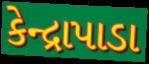
કેન્દ્રાપાડા